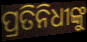
ପ୍ରତିନିଧୀଙ୍କୁ